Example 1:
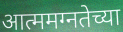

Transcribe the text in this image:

आत्ममग्नतेच्या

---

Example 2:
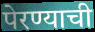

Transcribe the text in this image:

पेरण्याची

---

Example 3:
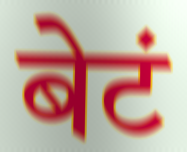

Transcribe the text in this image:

बेटं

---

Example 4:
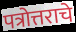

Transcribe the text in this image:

पत्रोत्तराचे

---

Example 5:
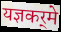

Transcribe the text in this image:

यज्ञकर्मे